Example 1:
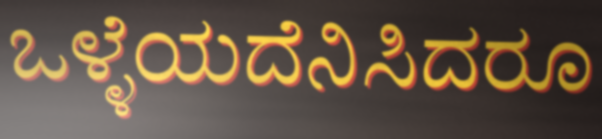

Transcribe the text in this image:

ಒಳ್ಳೆಯದೆನಿಸಿದರೂ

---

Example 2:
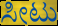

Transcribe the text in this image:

ಸೀಟು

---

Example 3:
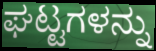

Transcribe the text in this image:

ಘಟ್ಟಗಳನ್ನು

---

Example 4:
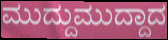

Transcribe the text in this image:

ಮುದ್ದುಮುದ್ದಾದ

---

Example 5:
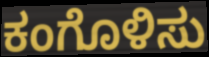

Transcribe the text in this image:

ಕಂಗೊಳಿಸು